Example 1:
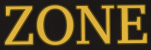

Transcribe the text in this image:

ZONE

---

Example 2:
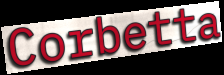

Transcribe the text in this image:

Corbetta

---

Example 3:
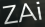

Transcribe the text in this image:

ZAi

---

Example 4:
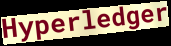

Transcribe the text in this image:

Hyperledger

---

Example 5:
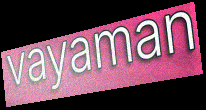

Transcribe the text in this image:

vayaman